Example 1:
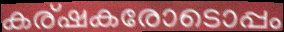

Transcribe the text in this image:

കര്ഷകരോടൊപ്പം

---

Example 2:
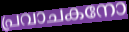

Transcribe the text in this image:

പ്രവാചകനോ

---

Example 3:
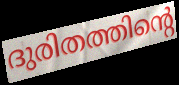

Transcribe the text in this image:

ദുരിതത്തിന്റെ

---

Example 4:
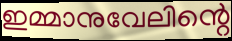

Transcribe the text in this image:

ഇമ്മാനുവേലിന്റെ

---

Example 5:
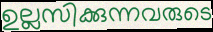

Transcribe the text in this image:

ഉല്ലസിക്കുന്നവരുടെ